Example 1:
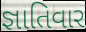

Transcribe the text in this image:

જ્ઞાતિવાર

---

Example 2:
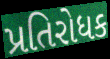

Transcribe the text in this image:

પ્રતિરોધક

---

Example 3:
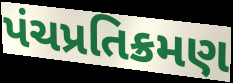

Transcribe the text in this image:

પંચપ્રતિક્રમણ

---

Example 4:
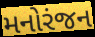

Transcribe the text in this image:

મનોરંજન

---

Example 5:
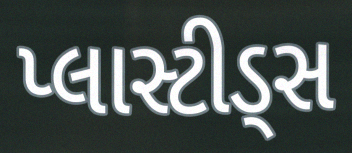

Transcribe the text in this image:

પ્લાસ્ટીડ્સ